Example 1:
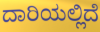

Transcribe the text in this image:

ದಾರಿಯಲ್ಲಿದೆ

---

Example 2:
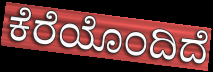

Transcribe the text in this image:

ಕೆರೆಯೊಂದಿದೆ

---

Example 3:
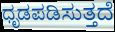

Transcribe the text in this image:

ಧೃಡಪಡಿಸುತ್ತದೆ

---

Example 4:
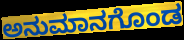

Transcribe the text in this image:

ಅನುಮಾನಗೊಂಡ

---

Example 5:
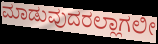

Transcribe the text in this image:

ಮಾಡುವುದರಲ್ಲಾಗಲೀ